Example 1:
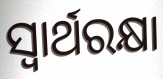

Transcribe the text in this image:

ସ୍ଵାର୍ଥରକ୍ଷା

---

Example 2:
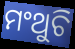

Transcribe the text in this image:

ମଂଥୁଚି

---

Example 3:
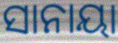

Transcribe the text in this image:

ସାନାୟା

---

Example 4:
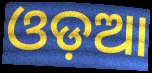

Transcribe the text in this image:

ଓଡ଼ଆ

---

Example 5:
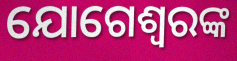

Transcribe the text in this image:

ଯୋଗେଶ୍ୱରଙ୍କ